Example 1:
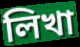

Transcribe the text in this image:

লিখা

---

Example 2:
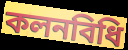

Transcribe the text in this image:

কলনবিধি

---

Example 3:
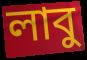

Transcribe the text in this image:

লাবু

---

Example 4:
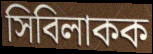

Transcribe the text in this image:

সিবিলাকক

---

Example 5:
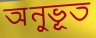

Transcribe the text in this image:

অনুভূত